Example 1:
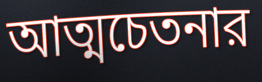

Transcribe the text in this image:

আত্মচেতনার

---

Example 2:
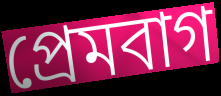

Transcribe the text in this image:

প্রেমবাগ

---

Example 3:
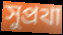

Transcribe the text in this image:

সুপ্রথা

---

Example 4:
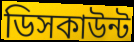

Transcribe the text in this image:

ডিসকাউন্ট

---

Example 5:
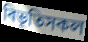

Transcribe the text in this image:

বিভূতিসকল